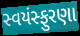
સ્વયંસ્ફુરણા